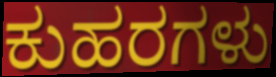
ಕುಹರಗಳು